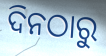
ଦିନଠାରୁ